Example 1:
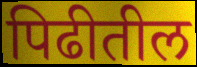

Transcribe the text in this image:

पिढीतील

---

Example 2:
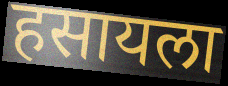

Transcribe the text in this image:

हसायला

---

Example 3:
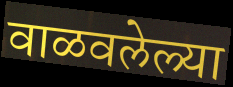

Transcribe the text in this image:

वाळवलेल्या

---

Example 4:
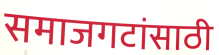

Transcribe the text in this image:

समाजगटांसाठी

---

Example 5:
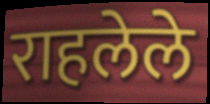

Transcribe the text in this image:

राहलेले